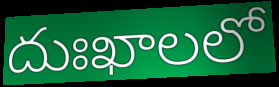
దుఃఖాలలో